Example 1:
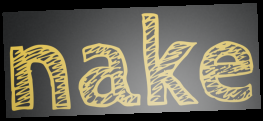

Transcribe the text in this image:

nake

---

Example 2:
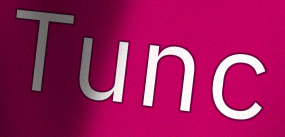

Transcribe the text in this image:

Tunc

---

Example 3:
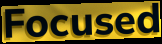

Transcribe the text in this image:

Focused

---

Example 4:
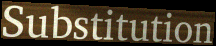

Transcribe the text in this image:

Substitution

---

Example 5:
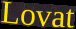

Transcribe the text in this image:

Lovat